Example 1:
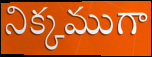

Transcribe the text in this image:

నిక్కముగా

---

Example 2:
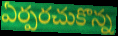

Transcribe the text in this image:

ఏర్పరచుకొన్న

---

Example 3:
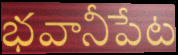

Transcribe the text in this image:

భవానీపేట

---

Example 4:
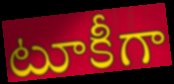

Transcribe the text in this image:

టూకీగా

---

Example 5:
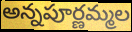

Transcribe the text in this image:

అన్నపూర్ణమ్మల